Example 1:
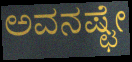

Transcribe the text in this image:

ಅವನಷ್ಟೇ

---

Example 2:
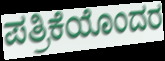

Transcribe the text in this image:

ಪತ್ರಿಕೆಯೊಂದರ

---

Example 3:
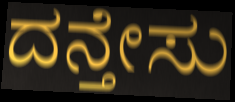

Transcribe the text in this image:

ದನ್ತೇಸು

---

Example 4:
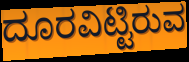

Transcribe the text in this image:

ದೂರವಿಟ್ಟಿರುವ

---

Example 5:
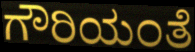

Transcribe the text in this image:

ಗೌರಿಯಂತೆ